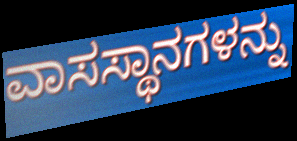
ವಾಸಸ್ಥಾನಗಳನ್ನು